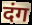
दंग